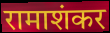
रामाशंकर